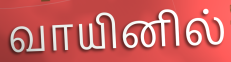
வாயினில்